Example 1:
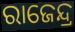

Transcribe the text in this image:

ରାଜେନ୍ଦ୍ର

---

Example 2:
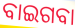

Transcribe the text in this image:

ବାଇଗବା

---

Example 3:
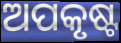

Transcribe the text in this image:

ଅପକୃଷ୍ଟ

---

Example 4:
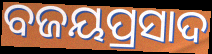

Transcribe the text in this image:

ବଜୟପ୍ରସାଦ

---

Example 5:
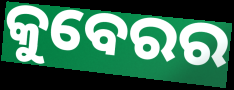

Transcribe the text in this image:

କୁବେରର